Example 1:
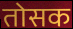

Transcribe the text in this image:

तोसक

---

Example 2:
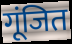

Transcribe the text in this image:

गूंजित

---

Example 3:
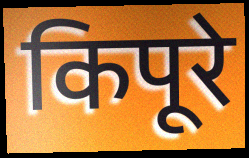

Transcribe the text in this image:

किपूरे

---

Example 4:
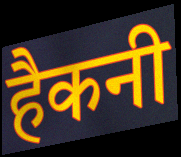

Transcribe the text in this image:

हैकनी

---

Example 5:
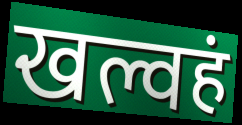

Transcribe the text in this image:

खल्वहं